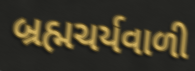
બ્રહ્મચર્યવાળી